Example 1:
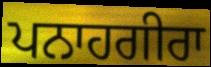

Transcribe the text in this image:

ਪਨਾਹਗੀਰਾ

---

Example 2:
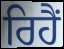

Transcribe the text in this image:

ਰਿਹੈੰ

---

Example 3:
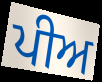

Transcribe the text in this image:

ਪੀਅ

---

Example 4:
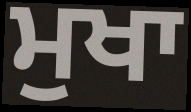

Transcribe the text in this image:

ਮੁਖਾ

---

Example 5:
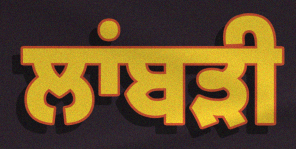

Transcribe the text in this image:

ਲਾਂਬੜੀ